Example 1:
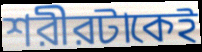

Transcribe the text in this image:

শরীরটাকেই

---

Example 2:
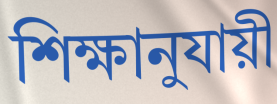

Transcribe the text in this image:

শিক্ষানুযায়ী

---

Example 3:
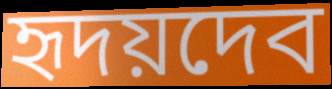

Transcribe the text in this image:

হৃদয়দেব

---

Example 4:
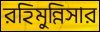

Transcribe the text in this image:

রহিমুন্নিসার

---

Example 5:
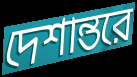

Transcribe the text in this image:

দেশান্তরে